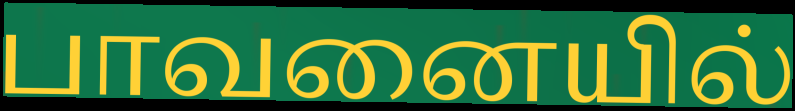
பாவனையில்